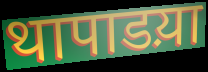
थापाडय़ा